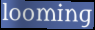
looming